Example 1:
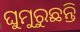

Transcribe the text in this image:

ଘୁମୁରୁଛନ୍ତି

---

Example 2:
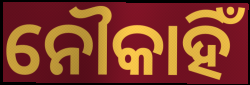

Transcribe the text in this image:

ନୌକାହିଁ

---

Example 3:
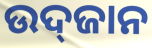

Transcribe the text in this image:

ଉଦ୍‌ଜାନ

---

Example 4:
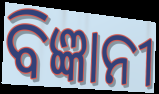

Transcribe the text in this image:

ବିଜ୍ଞାନୀ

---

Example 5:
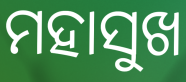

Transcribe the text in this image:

ମହାସୁଖ